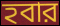
হবার